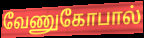
வேணுகோபால்